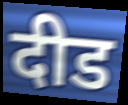
दीड